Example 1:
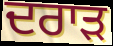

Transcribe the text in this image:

ਦਰਾੜ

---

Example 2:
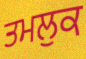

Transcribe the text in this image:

ਤਮਲੁਕ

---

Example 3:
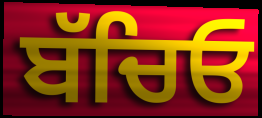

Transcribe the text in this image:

ਬੱਚਿਓ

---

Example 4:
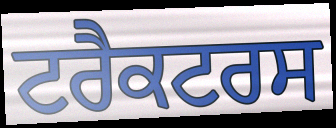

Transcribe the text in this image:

ਟਰੈਕਟਰਸ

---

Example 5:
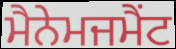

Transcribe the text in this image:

ਮੈਨੇਮਜਮੈਂਟ